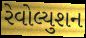
રેવોલ્યુશન